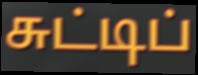
சுட்டிப்